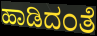
ಹಾಡಿದಂತೆ